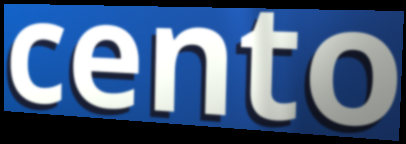
cento